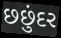
છછુંદર